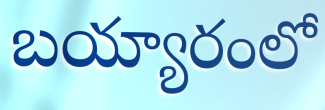
బయ్యారంలో